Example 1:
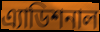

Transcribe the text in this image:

এ্যাডিশনাল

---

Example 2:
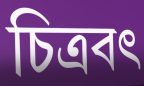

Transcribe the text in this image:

চিত্রবৎ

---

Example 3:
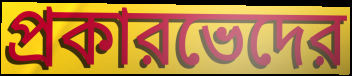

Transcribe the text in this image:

প্রকারভেদের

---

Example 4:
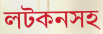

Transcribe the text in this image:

লটকনসহ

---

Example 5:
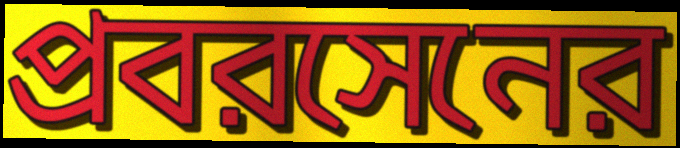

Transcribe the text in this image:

প্রবরসেনের